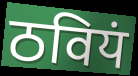
ठवियं